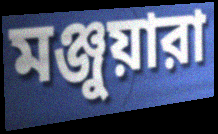
মঞ্জুয়ারা